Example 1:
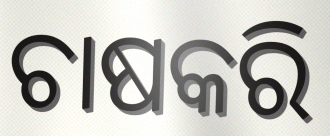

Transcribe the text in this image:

ଚାଷକରି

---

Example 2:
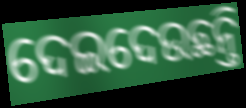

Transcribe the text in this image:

ଦେଇଦେଉଛନ୍ତି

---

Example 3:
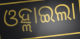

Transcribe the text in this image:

ଓହ୍ଲାଇଲା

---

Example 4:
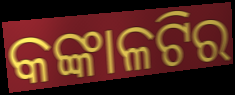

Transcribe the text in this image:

କଙ୍କାଳଟିର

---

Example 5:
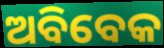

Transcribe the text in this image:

ଅବିବେକ